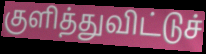
குளித்துவிட்டுச்